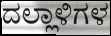
ದಲ್ಲಾಳಿಗಳ